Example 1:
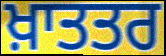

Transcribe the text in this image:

ਖ਼ਾਤਤਰ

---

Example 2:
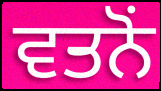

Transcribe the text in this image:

ਵਤਨੋਂ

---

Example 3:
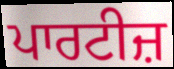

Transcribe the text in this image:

ਪਾਰਟੀਜ਼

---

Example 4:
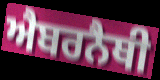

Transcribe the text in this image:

ਐਬਰਨੈਥੀ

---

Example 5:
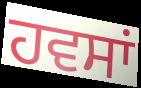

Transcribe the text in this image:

ਹਵਸਾਂ